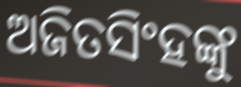
ଅଜିତସିଂହଙ୍କୁ